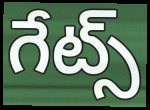
గేట్స్